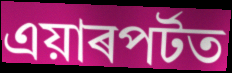
এয়াৰপৰ্টত